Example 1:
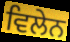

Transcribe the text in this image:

ਵਿਲੇਨ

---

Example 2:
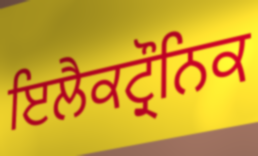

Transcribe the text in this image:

ਇਲੈਕਟ੍ਰੌਨਿਕ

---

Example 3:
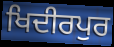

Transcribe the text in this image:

ਖਿਦੀਰਪੁਰ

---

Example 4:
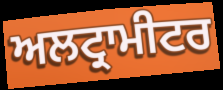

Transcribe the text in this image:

ਅਲਟ੍ਰਾਮੀਟਰ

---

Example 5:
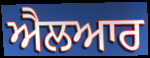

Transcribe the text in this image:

ਐਲਆਰ